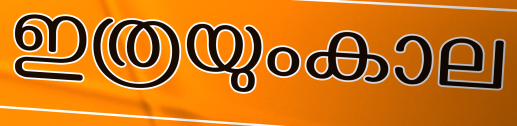
ഇത്രയുംകാല